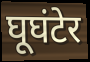
घूघंटेर